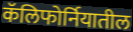
कॅलिफोर्नियातील